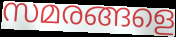
സമരങ്ങളെ